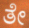
ತೇ